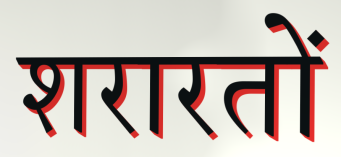
शरारतों